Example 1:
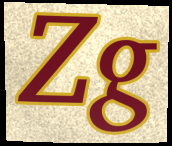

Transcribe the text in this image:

Zg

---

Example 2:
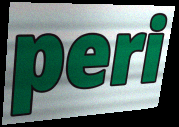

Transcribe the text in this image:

peri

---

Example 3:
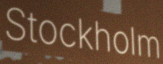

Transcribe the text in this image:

Stockholm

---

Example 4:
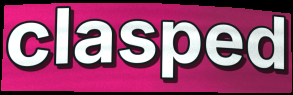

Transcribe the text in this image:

clasped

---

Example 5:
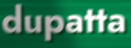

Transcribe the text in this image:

dupatta